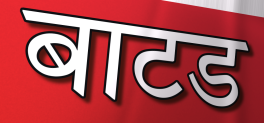
बाटड